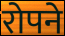
रोपने